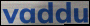
vaddu